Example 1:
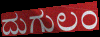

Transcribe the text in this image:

ದುಗುಲಂ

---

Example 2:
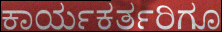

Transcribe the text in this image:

ಕಾರ್ಯಕರ್ತರಿಗೂ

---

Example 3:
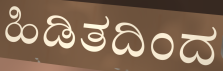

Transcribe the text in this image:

ಹಿಡಿತದಿಂದ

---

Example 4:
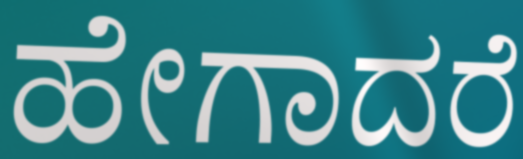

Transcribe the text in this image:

ಹೇಗಾದರೆ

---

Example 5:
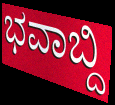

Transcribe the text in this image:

ಭವಾಬ್ದಿ